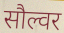
सौल्वर